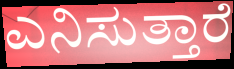
ಎನಿಸುತ್ತಾರೆ